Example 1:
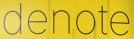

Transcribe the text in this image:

denote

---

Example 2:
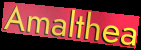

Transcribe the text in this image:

Amalthea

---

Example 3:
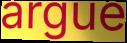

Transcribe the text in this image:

argue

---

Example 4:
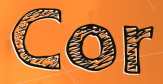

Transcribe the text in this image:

Cor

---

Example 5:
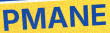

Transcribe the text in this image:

PMANE